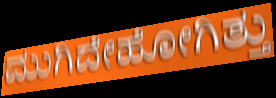
ಮುಗಿದೇಹೋಗಿತ್ತು